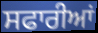
ਸਫਾਰੀਆਂ